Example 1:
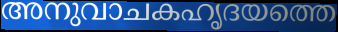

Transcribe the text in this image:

അനുവാചകഹൃദയത്തെ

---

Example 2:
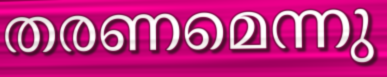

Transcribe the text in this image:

തരണമെന്നു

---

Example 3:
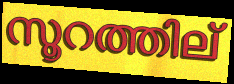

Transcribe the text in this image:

സൂറത്തില്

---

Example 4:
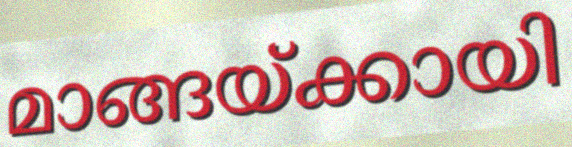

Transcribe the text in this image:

മാങ്ങയ്ക്കായി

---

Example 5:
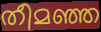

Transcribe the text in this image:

തീമഞ്ഞ